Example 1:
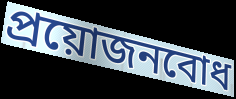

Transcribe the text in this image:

প্ৰয়োজনবোধ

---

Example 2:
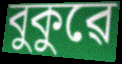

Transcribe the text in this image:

বুকুৱে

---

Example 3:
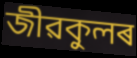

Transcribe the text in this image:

জীৱকুলৰ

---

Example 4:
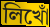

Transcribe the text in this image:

লিখোঁ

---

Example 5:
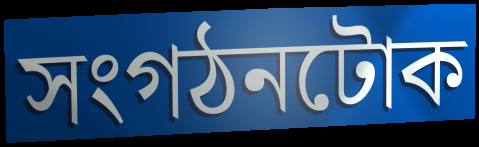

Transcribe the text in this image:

সংগঠনটোক